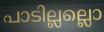
പാടില്ലല്ലൊ